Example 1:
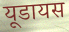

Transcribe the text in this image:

यूडायस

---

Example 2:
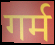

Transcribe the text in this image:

गर्म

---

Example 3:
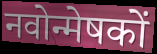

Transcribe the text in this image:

नवोन्मेषकों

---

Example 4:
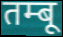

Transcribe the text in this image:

तम्बू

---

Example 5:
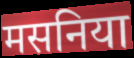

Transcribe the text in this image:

मसनिया